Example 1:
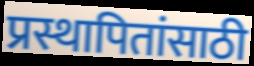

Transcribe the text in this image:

प्रस्थापितांसाठी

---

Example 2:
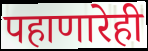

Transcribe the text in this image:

पहाणारेही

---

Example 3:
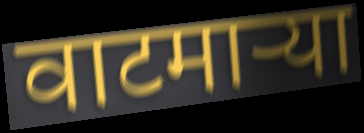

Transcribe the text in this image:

वाटमाऱ्या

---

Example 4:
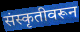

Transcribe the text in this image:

संस्कृतीवरून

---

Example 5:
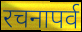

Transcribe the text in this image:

रचनापर्व